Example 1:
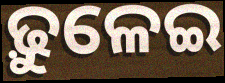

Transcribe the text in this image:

ଢ଼ୁଳେଇ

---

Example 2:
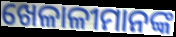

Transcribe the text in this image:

ଖେଳାଳୀମାନଙ୍କ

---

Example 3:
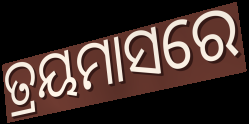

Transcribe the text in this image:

ତ୍ରୟମାସରେ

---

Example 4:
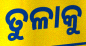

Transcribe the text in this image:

ତୁଳାକୁ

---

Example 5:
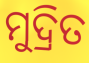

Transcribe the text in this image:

ମୁଦ୍ରିତ